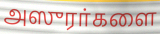
அஸுரர்களை